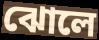
ঝোলে